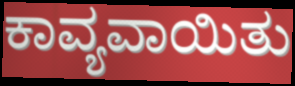
ಕಾವ್ಯವಾಯಿತು